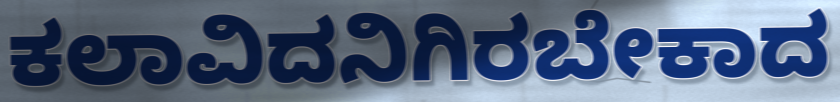
ಕಲಾವಿದನಿಗಿರಬೇಕಾದ